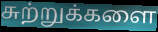
சுற்றுக்களை